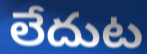
లేదుట